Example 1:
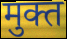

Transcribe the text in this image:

मुक्त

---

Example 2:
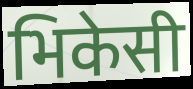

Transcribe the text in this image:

भिकेसी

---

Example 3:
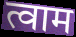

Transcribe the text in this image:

त्वाम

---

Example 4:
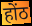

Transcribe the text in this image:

होंठ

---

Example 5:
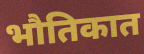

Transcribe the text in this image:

भौतिकात